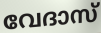
വേദാസ്